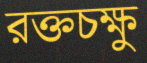
রক্তচক্ষু